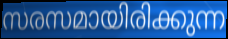
സരസമായിരിക്കുന്ന